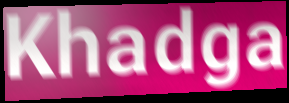
Khadga